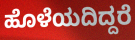
ಹೊಳೆಯದಿದ್ದರೆ